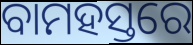
ବାମହସ୍ତରେ